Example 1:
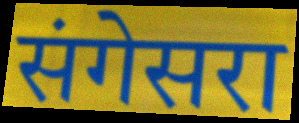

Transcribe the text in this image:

संगेसरा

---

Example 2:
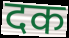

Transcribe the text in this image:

दक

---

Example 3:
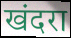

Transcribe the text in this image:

खंदरा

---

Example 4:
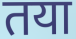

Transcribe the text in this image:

तया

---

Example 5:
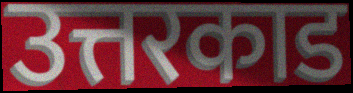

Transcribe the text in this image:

उत्तरकाड